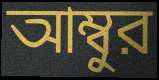
আম্বুর